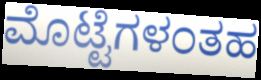
ಮೊಟ್ಟೆಗಳಂತಹ